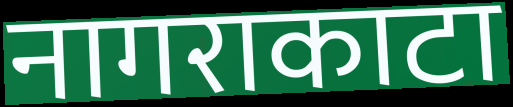
नागराकाटा